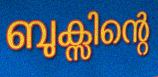
ബുക്സിന്റെ